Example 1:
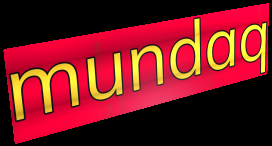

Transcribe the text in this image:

mundaq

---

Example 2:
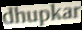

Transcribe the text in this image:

dhupkar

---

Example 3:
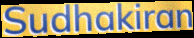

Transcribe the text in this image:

Sudhakiran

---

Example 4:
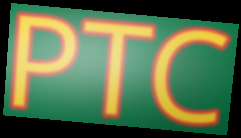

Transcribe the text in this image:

PTC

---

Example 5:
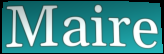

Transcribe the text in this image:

Maire